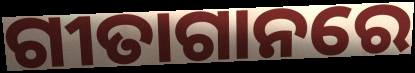
ଗୀତାଗାନରେ